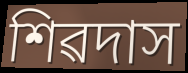
শিৱদাস